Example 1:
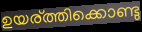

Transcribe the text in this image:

ഉയര്ത്തിക്കൊണ്ടു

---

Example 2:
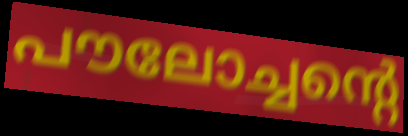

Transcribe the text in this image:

പൗലോച്ചന്റെ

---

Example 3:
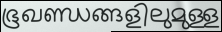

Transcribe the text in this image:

ഭൂഖണ്ഡങ്ങളിലുമുള്ള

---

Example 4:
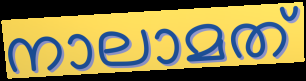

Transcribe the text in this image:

നാലാമത്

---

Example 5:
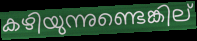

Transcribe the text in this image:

കഴിയുന്നുണ്ടെങ്കില്